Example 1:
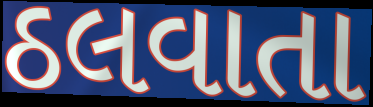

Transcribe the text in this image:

ઠલવાતા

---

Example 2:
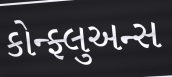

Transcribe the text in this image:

કોન્ફ્લુઅન્સ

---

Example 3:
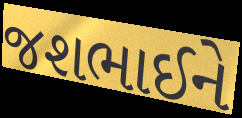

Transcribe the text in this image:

જશભાઈને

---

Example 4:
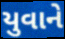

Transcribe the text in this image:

યુવાને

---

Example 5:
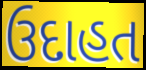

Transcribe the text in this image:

ઉદાહત